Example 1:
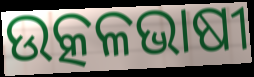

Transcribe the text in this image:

ଉତ୍କଳଭାଷୀ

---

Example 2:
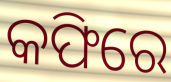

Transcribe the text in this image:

କଫିରେ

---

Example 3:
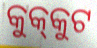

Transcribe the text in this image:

କୁକ୍‍କୁଟ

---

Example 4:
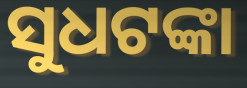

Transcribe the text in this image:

ସୁଧଟଙ୍କା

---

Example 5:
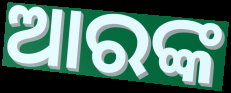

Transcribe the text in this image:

ଆରଙ୍କ